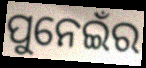
ପୁନେଇଁର